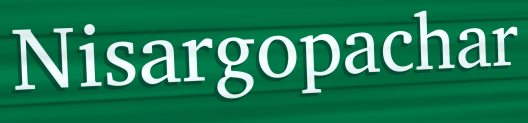
Nisargopachar